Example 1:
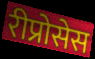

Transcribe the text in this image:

रीप्रोसेस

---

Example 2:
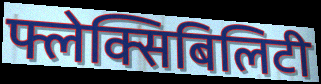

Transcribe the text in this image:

फ्लेक्सिबिलिटी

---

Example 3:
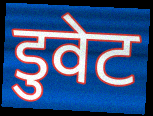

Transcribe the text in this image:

डुवेट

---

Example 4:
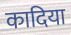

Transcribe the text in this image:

कादिया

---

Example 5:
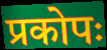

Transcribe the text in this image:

प्रकोपः